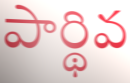
పార్థివ